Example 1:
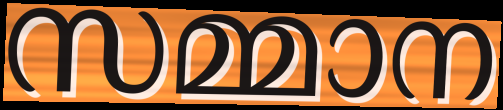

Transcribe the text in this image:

സമ്മാന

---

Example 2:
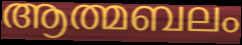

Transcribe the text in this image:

ആത്മബലം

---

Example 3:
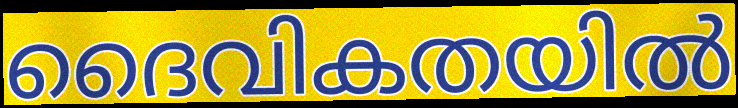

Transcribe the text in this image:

ദൈവികതയിൽ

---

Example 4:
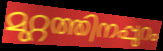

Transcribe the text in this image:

മുറ്റത്തിനപ്പുറം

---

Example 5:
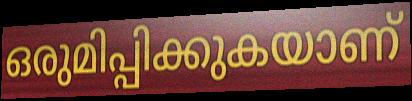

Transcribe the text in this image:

ഒരുമിപ്പിക്കുകയാണ്